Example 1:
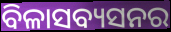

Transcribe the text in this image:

ବିଳାସବ୍ୟସନର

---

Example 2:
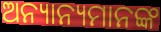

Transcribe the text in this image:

ଅନ୍ୟାନ୍ୟମାନଙ୍କ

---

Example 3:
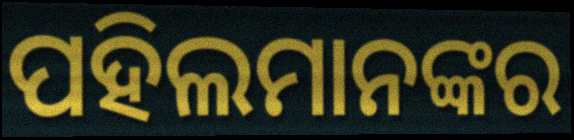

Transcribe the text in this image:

ପହିଲମାନଙ୍କର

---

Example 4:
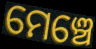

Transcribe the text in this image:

ମେଞ୍ଚେ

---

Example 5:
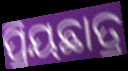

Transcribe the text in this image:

ପ୍ରିୟଛାତ୍ର